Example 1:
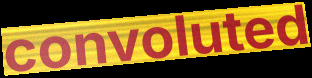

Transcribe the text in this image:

convoluted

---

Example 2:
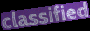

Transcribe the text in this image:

classified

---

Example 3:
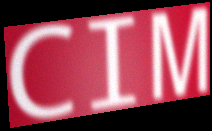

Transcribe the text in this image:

CIM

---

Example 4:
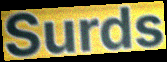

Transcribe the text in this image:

Surds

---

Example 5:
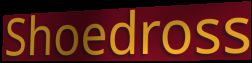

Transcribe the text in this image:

Shoedross